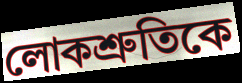
লোকশ্রুতিকে